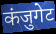
कंजुगेट